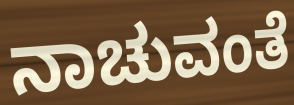
ನಾಚುವಂತೆ